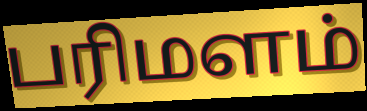
பரிமளம்